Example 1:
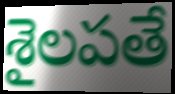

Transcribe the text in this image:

శైలపతే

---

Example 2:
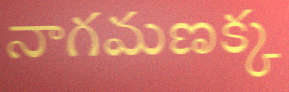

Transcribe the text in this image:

నాగమణక్క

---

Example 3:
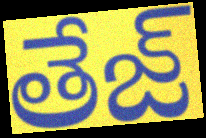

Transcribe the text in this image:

తేజ్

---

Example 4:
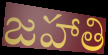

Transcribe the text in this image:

జహాతి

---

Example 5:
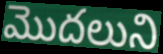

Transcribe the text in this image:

మొదలుని